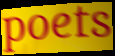
poets